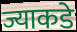
ज्याकडे